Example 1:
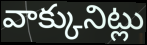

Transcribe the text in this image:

వాక్కునిట్లు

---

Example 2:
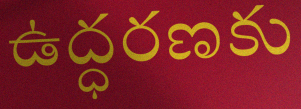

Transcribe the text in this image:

ఉద్ధరణకు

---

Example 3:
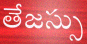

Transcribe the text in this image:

తేజస్సు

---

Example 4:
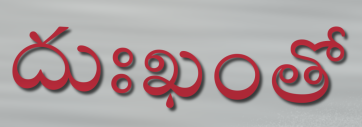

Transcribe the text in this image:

దుఃఖంతో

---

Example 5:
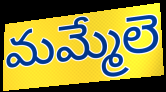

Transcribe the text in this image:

మమ్మేలె